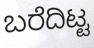
ಬರೆದಿಟ್ಟ